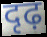
दृढ़